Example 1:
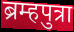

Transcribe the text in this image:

ब्रम्हपुत्रा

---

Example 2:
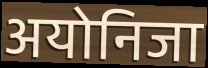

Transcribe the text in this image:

अयोनिजा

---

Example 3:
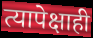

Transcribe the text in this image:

त्यापेक्षाही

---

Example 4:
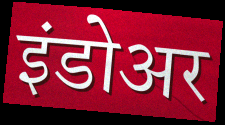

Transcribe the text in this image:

इंडोअर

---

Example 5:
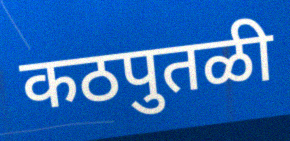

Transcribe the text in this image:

कठपुतळी